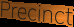
Precinct